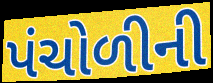
પંચોળીની